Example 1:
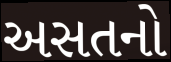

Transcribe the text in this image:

અસતનો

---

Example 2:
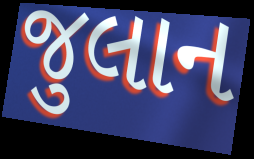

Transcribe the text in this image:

જુલાન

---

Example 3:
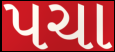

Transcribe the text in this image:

પચા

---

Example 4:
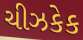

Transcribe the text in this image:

ચીઝકેક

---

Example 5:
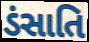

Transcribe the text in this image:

ડંસાતિ